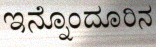
ಇನ್ನೊಂದೂರಿನ